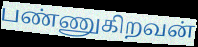
பண்ணுகிறவன்